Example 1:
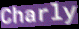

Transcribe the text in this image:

Charly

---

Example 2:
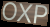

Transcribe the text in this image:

OXP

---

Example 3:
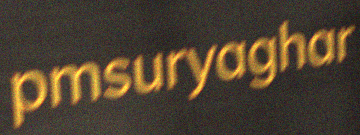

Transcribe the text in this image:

pmsuryaghar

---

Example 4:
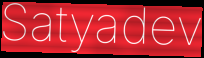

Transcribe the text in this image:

Satyadev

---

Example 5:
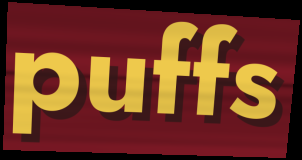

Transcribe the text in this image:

puffs